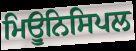
ਮਿਊਨਿਸਿਪਲ